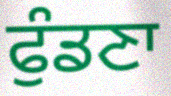
ਫੁੰਡਣਾ